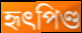
হৃৎপিণ্ড